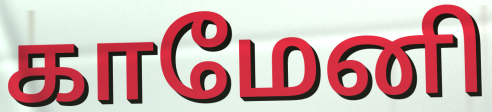
காமேனி